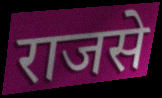
राजसे